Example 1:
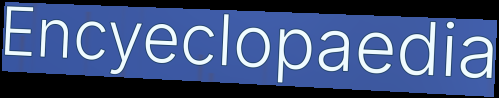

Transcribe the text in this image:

Encyeclopaedia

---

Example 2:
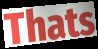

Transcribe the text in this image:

Thats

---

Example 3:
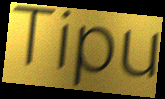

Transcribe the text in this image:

Tipu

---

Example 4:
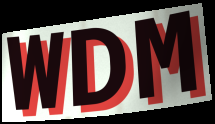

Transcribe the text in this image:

WDM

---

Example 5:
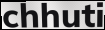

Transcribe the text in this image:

chhuti